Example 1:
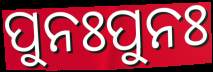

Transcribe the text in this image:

ପୁନଃପୁନଃ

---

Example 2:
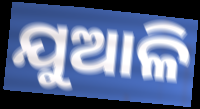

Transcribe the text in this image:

ଯୁଆଳି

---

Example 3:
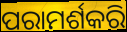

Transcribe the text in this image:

ପରାମର୍ଶକରି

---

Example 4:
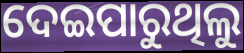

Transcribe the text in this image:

ଦେଇପାରୁଥିଲୁ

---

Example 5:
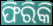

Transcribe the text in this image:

ଫିରିକି